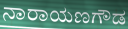
ನಾರಾಯಣಗೌಡ